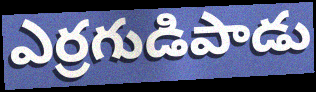
ఎర్రగుడిపాడు